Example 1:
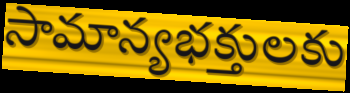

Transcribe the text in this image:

సామాన్యభక్తులకు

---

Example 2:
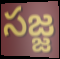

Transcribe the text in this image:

సజ్జ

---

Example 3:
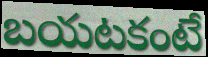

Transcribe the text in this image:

బయటకంటే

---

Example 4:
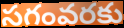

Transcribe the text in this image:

సగంవరకు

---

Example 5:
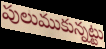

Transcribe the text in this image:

పులుముకున్నట్టు